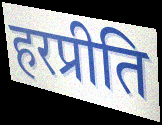
हरप्रीति